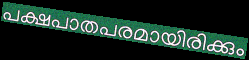
പക്ഷപാതപരമായിരിക്കും